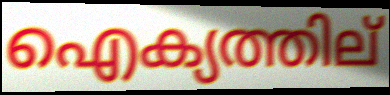
ഐക്യത്തില്